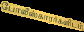
போலீஸ்காரர்களிடம்